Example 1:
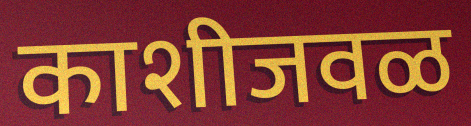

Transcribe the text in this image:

काशीजवळ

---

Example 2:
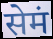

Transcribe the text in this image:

सेमं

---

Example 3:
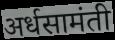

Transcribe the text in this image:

अर्धसामंती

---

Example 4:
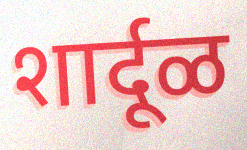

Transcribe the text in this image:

शार्दूळ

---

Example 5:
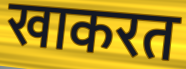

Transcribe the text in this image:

खाकरत